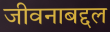
जीवनाबद्दल